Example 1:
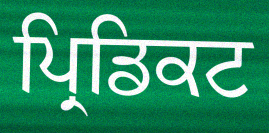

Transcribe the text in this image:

ਪ੍ਰਿਡਿਕਟ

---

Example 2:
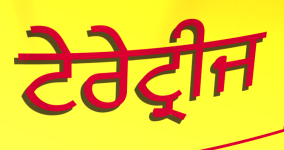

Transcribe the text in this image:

ਟੇਰੇਟ੍ਰੀਜ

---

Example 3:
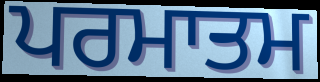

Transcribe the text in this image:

ਪਰਮਾਤਮ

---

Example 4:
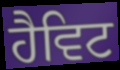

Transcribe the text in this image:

ਹੈਵਿਟ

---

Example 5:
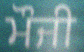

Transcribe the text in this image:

ਮੌਜੀ